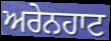
ਅਰੇਨਹਾਟ